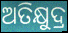
ଅତିକ୍ଷୁଦ୍ର